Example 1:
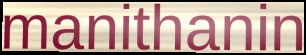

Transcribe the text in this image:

manithanin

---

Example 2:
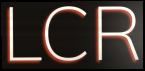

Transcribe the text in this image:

LCR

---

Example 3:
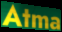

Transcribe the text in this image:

Atma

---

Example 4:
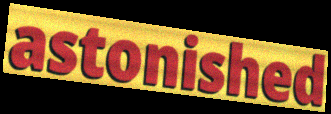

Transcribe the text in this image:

astonished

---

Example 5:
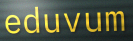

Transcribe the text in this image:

eduvum